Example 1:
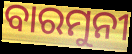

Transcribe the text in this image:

ବାରମୁନୀ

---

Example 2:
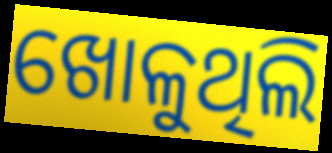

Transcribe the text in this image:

ଖୋଳୁଥିଲି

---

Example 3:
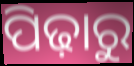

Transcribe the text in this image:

ପିଢ଼ାରୁ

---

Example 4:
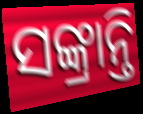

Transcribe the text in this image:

ସଙ୍କ୍ରାନ୍ତି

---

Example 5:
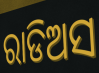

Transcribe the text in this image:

ରାଡିଅସ